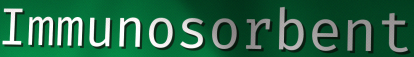
Immunosorbent